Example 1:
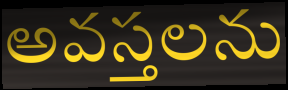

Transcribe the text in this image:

అవస్తలను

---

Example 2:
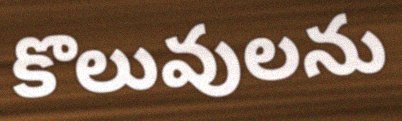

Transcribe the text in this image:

కొలువులను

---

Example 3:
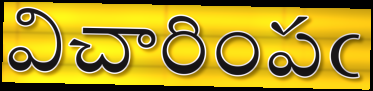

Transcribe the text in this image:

విచారింపఁ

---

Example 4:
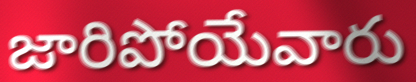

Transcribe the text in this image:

జారిపోయేవారు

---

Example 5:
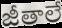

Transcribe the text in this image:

జీతాలే